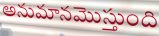
అనుమానమొస్తుంది